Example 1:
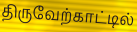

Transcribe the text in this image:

திருவேற்காட்டில்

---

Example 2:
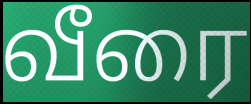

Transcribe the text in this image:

வீரை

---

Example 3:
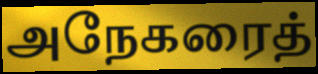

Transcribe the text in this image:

அநேகரைத்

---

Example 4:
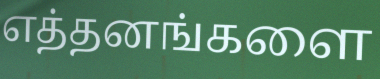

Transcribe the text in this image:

எத்தனங்களை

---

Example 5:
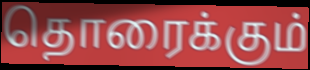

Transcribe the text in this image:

தொரைக்கும்